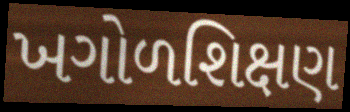
ખગોળશિક્ષણ